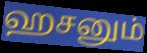
ஹசனும்